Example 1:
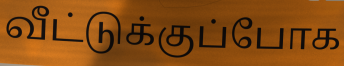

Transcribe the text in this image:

வீட்டுக்குப்போக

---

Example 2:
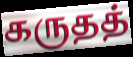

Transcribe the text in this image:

கருதத்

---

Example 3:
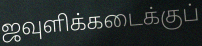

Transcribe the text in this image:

ஜவுளிக்கடைக்குப்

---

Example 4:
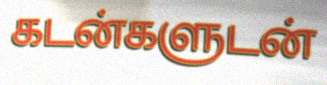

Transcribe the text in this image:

கடன்களுடன்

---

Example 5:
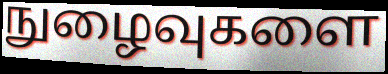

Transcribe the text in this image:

நுழைவுகளை